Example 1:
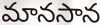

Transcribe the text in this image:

మానసాన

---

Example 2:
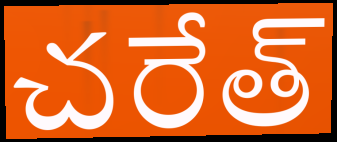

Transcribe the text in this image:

చరేత్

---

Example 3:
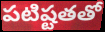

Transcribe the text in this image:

పటిష్టతతో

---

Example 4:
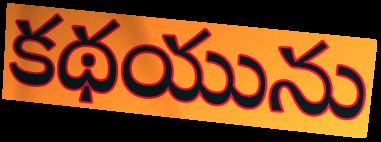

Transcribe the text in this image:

కథయును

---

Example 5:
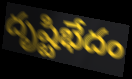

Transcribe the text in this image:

దృష్టిభేదం